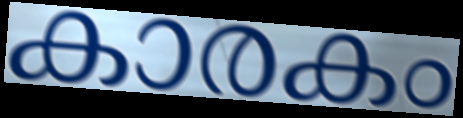
കാരകം